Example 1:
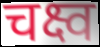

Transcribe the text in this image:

चक्ष्व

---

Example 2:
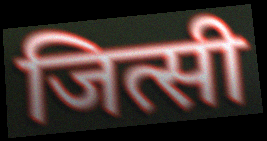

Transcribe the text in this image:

जित्सी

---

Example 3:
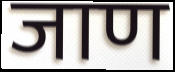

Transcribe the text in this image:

जाण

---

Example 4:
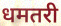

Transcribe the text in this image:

धमतरी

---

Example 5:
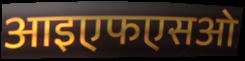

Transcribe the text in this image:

आइएफएसओ